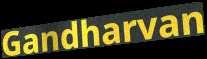
Gandharvan